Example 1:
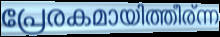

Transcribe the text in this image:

പ്രേരകമായിത്തീര്ന്ന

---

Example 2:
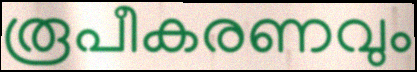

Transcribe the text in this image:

രൂപീകരണവും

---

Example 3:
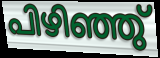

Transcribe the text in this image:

പിഴിഞ്ഞു്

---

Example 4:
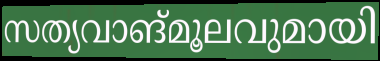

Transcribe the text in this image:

സത്യവാങ്മൂലവുമായി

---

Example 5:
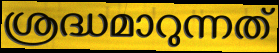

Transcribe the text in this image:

ശ്രദ്ധമാറുന്നത്